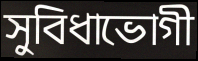
সুবিধাভোগী